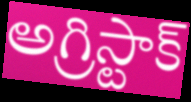
అగ్రిస్టాక్